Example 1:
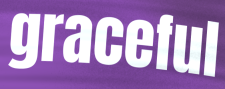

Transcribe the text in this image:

graceful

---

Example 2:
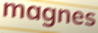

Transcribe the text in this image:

magnes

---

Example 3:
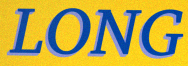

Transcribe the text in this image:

LONG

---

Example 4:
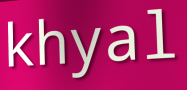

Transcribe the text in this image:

khyal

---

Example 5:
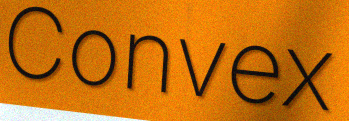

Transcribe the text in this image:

Convex